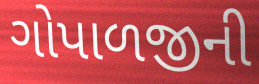
ગોપાળજીની